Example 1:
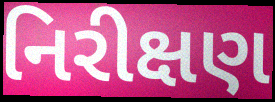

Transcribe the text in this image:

નિરીક્ષણ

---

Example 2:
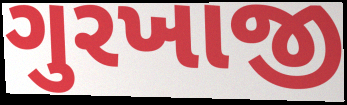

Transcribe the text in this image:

ગુરખાજી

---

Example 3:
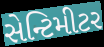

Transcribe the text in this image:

સેન્ટિમીટર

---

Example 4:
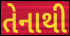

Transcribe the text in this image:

તેનાથી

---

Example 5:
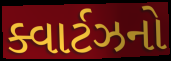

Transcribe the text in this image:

ક્વાર્ટઝનો